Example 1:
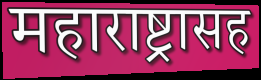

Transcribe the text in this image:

महाराष्ट्रासह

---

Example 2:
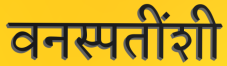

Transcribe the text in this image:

वनस्पतींशी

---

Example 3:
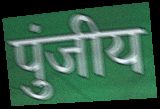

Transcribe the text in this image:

पुंजीय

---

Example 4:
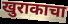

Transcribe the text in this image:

खुराकाचा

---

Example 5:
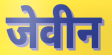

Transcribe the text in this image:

जेवीन